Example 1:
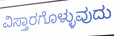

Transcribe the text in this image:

ವಿಸ್ತಾರಗೊಳ್ಳುವುದು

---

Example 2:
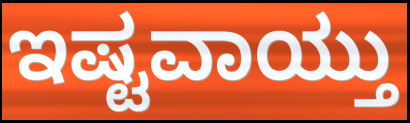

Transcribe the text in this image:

ಇಷ್ಟವಾಯ್ತು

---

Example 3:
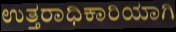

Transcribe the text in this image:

ಉತ್ತರಾಧಿಕಾರಿಯಾಗಿ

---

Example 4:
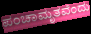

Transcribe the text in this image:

ಪಂಚಾಮೃತವೆಂದು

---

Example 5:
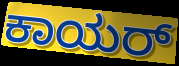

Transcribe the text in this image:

ಕಾಯರ್